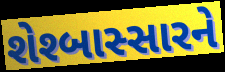
શેશ્બાસ્સારને